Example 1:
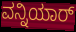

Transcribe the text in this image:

ವನ್ನಿಯಾರ್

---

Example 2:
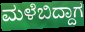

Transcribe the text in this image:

ಮಳೆಬಿದ್ದಾಗ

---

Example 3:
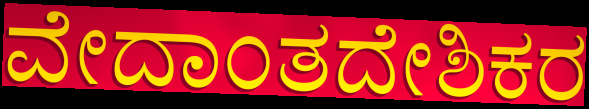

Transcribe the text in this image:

ವೇದಾಂತದೇಶಿಕರ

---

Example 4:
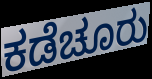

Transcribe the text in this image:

ಕಡೆಚೂರು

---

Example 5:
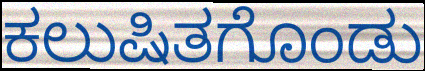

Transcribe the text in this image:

ಕಲುಷಿತಗೊಂಡು